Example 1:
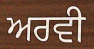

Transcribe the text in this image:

ਅਰਵੀ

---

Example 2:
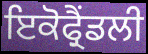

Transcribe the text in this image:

ਇਕੋਫ੍ਰੈਂਡਲੀ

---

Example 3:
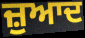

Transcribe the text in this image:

ਜ਼ੁਆਦ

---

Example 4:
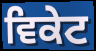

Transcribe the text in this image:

ਵਿਕੇਟ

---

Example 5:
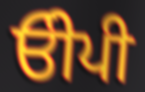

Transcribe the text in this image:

ਓੀਪੀ